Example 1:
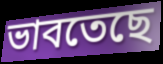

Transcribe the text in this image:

ভাবতেছে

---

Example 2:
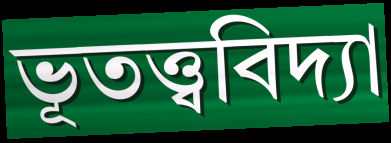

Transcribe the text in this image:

ভূতত্ত্ববিদ্যা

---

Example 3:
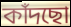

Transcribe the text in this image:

কাঁদছো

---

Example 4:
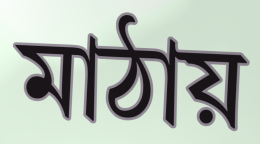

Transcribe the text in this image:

মাঠায়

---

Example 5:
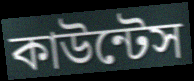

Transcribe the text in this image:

কাউন্টেস